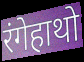
रंगेहाथो